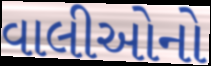
વાલીઓનો